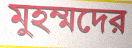
মুহম্মদের